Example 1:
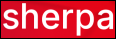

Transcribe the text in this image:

sherpa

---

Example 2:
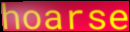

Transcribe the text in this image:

hoarse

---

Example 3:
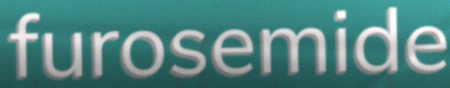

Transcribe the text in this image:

furosemide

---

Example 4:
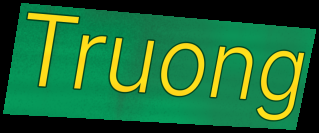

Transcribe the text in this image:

Truong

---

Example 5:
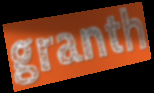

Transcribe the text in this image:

granth